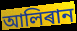
আলিৰান